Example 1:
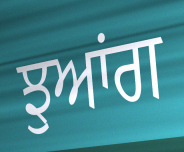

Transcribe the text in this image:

ਝੁਆਂਗ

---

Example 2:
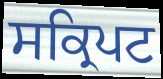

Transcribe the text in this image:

ਸਕ੍ਰਿਪਟ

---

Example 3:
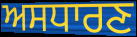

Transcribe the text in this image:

ਅਸਧਾਰਣ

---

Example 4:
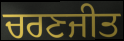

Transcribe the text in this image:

ਚਰਣਜੀਤ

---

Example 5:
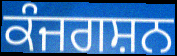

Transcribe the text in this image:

ਕੰਜਗਸ਼ਨ